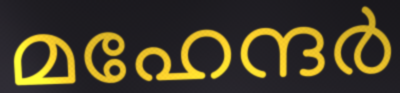
മഹേന്ദർ